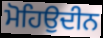
ਮੋਹਿਉਦੀਨ